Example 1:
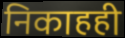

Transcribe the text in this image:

निकाहही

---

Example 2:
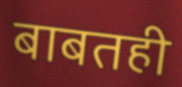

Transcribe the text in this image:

बाबतही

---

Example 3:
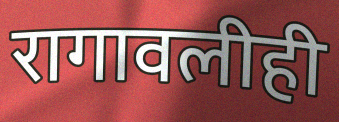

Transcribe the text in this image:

रागावलीही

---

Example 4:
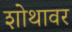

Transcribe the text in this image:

शोथावर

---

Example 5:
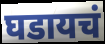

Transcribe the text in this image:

घडायचं